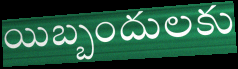
యిబ్బందులకు